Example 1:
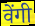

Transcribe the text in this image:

वेंगी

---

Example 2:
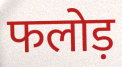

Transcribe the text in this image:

फलोड़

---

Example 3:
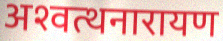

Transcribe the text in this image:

अश्वत्थनारायण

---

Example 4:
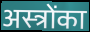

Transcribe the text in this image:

अस्त्रोंका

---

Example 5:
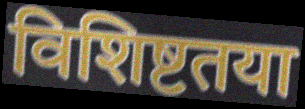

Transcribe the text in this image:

विशिष्टतया